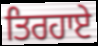
ਤਿਰਹਾਏ